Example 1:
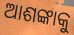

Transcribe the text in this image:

ଆଶଙ୍କାକୁ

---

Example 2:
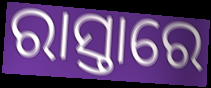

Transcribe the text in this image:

ରାସ୍ତାରେ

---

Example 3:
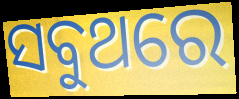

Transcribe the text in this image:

ସବୁଥରେ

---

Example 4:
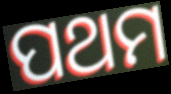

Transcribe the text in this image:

ପଥମ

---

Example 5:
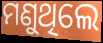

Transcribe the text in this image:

ମଣୁଥିଲେ